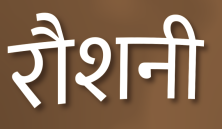
रौशनी